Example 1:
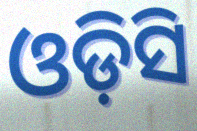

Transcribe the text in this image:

ଓଡ଼ିସି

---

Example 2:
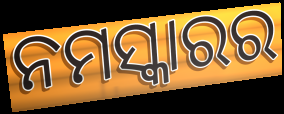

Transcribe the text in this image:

ନମସ୍କାରର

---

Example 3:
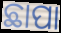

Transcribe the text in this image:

ଛାପା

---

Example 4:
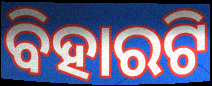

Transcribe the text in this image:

ବିହାରଟି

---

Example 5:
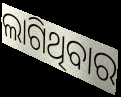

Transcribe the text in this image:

ଲାଗିଥିବାର